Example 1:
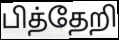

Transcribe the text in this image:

பித்தேறி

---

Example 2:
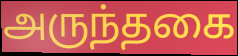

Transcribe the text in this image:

அருந்தகை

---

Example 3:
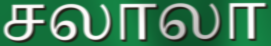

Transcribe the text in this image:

சலாலா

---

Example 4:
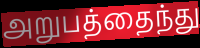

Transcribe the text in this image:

அறுபத்தைந்து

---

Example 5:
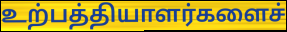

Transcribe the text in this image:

உற்பத்தியாளர்களைச்